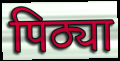
पिठ्या